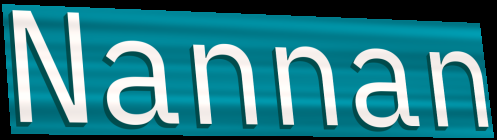
Nannan